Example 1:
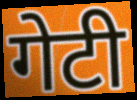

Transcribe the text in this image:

गेटी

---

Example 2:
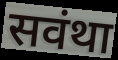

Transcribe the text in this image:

सवंथा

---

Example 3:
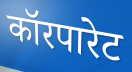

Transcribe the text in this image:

कॉरपारेट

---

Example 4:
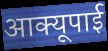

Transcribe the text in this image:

आक्यूपाई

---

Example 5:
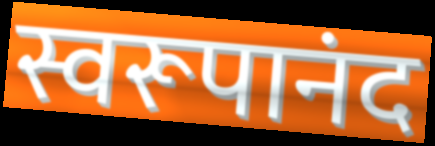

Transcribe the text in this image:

स्वरूपानंद